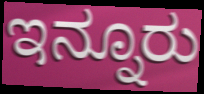
ಇನ್ನೂರು